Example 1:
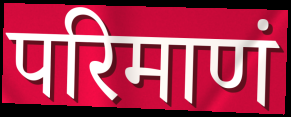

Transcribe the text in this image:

परिमाणं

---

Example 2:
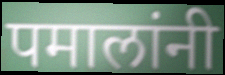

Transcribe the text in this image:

पमालांनी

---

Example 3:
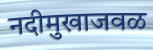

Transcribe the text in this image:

नदीमुखाजवळ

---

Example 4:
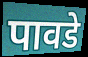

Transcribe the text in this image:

पावडे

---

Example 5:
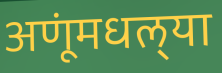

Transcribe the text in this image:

अणूंमधल्या